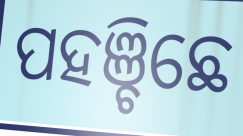
ପହଞ୍ଚିଛେ